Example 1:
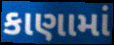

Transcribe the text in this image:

કાણામાં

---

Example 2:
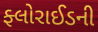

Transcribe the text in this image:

ફ્લોરાઈડની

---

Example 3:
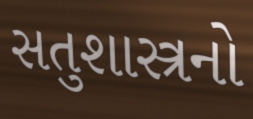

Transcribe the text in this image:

સતુશાસ્ત્રનો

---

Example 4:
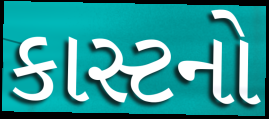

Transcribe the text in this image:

કાસ્ટનો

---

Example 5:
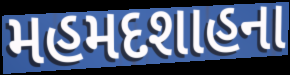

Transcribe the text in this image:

મહમદશાહના